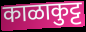
काळाकुट्ट